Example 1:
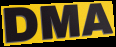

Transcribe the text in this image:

DMA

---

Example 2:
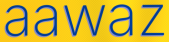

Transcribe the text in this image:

aawaz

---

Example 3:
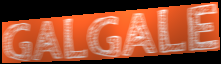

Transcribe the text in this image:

GALGALE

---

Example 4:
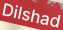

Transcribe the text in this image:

Dilshad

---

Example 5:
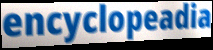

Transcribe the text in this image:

encyclopeadia